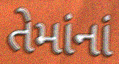
તેમાંનાં